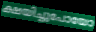
ക്ഷയിച്ചുപോയോ